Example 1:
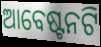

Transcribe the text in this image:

ଆବେଷ୍ଟନଟି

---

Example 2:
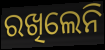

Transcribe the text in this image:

ରଖିଲେନି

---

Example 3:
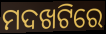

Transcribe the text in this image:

ମଦଖଟିରେ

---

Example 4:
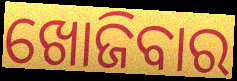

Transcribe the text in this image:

ଖୋଜିବାର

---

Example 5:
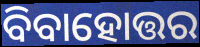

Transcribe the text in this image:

ବିବାହୋତ୍ତର